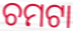
ଚମଟା